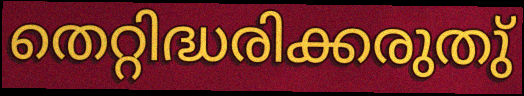
തെറ്റിദ്ധരിക്കരുതു്